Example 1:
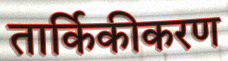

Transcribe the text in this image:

तार्किकीकरण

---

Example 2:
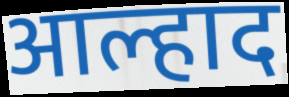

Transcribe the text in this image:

आल्हाद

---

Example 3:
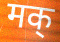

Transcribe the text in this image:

मक्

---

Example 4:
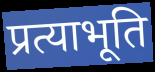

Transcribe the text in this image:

प्रत्याभूति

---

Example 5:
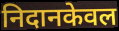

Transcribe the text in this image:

निदानकेवल